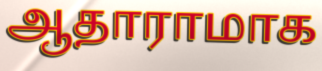
ஆதாராமாக